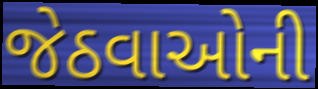
જેઠવાઓની